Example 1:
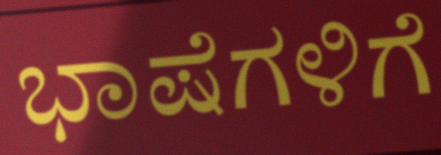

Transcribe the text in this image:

ಭಾಷೆಗಳಿಗೆ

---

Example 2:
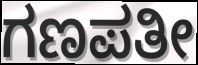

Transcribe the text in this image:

ಗಣಪತೀ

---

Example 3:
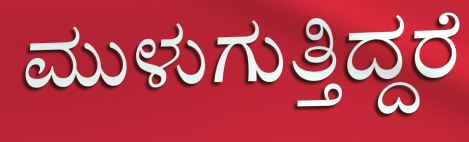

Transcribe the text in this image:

ಮುಳುಗುತ್ತಿದ್ದರೆ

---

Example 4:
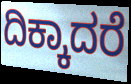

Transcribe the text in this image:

ದಿಕ್ಕಾದರೆ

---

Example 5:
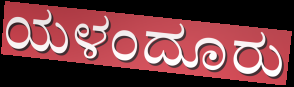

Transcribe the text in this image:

ಯಳಂದೂರು